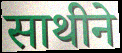
साथीने